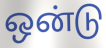
ஒன்டு